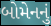
બોમેનનું